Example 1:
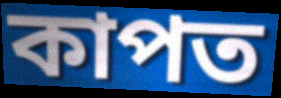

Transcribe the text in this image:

কাপত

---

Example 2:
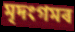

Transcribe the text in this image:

মৃদংগমৰ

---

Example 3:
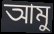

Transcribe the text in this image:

আমু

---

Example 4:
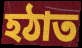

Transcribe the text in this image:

হঠাত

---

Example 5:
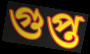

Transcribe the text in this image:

গুপ্ত